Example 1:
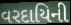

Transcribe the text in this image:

વરદાયિની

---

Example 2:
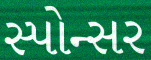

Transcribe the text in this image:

સ્પોન્સર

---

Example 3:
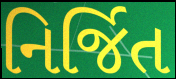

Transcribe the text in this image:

નિર્જિત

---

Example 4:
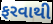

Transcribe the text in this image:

ફરવાથી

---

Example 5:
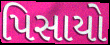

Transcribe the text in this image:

પિસાયો